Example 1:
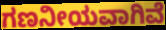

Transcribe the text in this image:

ಗಣನೀಯವಾಗಿವೆ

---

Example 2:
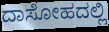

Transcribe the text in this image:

ದಾಸೋಹದಲ್ಲಿ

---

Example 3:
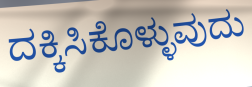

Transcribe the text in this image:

ದಕ್ಕಿಸಿಕೊಳ್ಳುವುದು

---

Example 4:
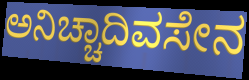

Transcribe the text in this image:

ಅನಿಚ್ಚಾದಿವಸೇನ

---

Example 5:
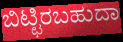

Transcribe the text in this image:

ಬಿಟ್ಟಿರಬಹುದಾ